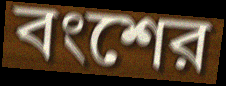
বংশের